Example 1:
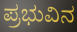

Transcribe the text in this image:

ಪ್ರಭುವಿನ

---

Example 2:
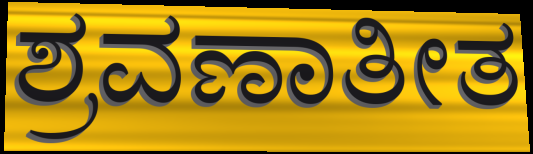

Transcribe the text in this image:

ಶ್ರವಣಾತೀತ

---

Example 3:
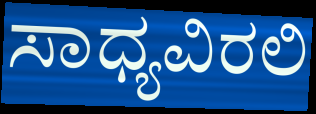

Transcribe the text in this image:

ಸಾಧ್ಯವಿರಲಿ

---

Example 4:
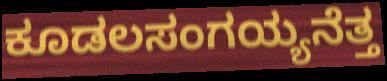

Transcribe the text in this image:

ಕೂಡಲಸಂಗಯ್ಯನೆತ್ತ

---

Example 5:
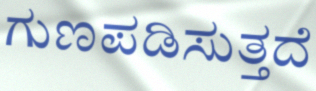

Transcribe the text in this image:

ಗುಣಪಡಿಸುತ್ತದೆ